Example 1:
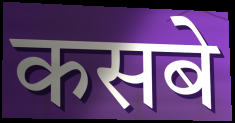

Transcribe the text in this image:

कसबे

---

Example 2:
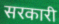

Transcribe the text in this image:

सरकारी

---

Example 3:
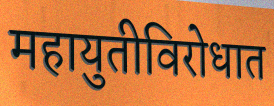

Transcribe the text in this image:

महायुतीविरोधात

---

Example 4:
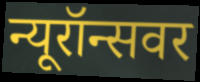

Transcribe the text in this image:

न्यूरॉन्सवर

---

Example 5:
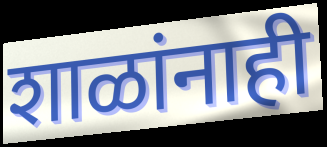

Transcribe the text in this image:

शाळांनाही